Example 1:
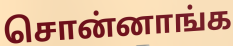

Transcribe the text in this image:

சொன்னாங்க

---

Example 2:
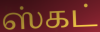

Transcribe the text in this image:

ஸ்கட்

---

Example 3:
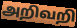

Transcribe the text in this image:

அறிவறி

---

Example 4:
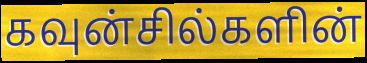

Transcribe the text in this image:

கவுன்சில்களின்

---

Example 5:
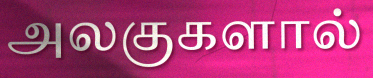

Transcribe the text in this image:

அலகுகளால்